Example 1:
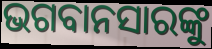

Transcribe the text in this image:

ଭଗବାନସାରଙ୍କୁ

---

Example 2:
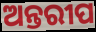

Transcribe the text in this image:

ଅନ୍ତରୀପ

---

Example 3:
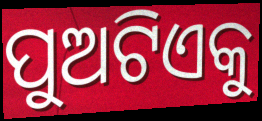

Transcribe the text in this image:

ପୁଅଟିଏକୁ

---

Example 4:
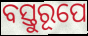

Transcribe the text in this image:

ବସ୍ତୁରୂପେ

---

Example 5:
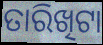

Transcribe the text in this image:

ତାରିଖିଟା